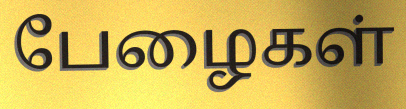
பேழைகள்